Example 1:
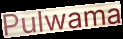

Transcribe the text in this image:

Pulwama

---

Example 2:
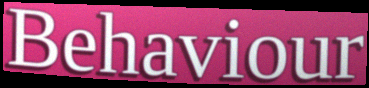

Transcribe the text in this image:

Behaviour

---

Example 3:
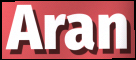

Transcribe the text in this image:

Aran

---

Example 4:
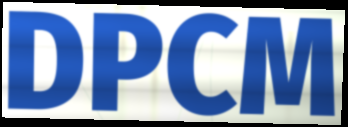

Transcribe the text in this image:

DPCM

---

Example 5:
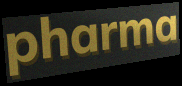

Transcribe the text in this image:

pharma